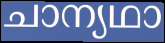
ചാന്യഥാ